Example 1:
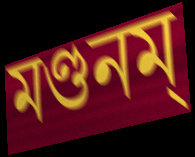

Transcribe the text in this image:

মণ্ডনম্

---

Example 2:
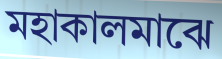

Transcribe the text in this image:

মহাকালমাঝে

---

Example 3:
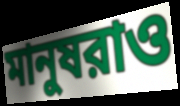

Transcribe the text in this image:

মানুষরাও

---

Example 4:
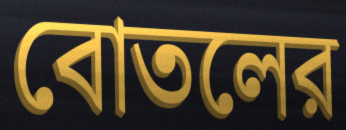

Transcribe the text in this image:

বোতলের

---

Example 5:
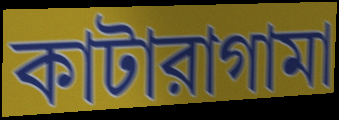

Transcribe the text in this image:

কাটারাগামা